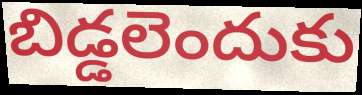
బిడ్డలెందుకు